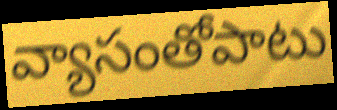
వ్యాసంతోపాటు